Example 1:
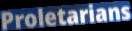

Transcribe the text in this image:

Proletarians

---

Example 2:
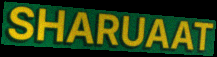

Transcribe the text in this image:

SHARUAAT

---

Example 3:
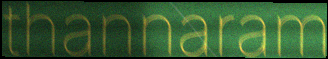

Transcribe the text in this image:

thannaram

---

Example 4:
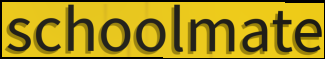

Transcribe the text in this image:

schoolmate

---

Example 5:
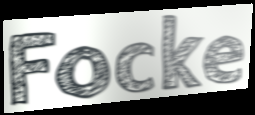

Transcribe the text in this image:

Focke